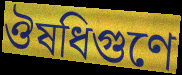
ঔষধিগুণে